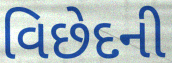
વિછેદની